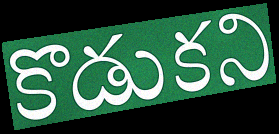
కొడుకని